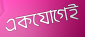
একযোগেই